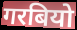
गरबियो